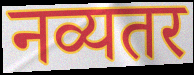
नव्यतर